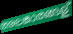
അലങ്കാരങ്ങള്